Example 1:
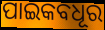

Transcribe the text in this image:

ପାଇକବଧୂର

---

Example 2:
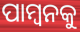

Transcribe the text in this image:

ପାମ୍ବନକୁ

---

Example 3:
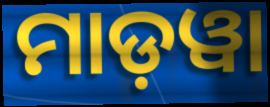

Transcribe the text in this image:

ମାଡ଼ୱା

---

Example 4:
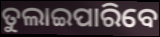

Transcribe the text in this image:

ତୁଲାଇପାରିବେ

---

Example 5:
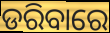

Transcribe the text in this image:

ଡରିବାରେ